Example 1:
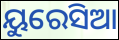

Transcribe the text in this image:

ୟୁରେସିଆ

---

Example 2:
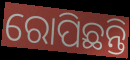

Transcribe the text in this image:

ରୋପିଛନ୍ତି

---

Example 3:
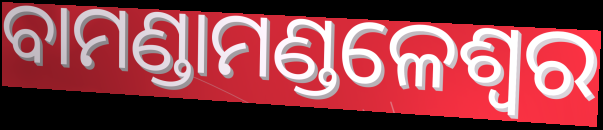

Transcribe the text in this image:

ବାମଣ୍ଡାମଣ୍ଡଳେଶ୍ୱର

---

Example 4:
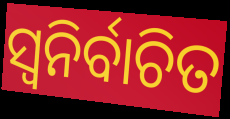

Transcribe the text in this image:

ସ୍ୱନିର୍ବାଚିତ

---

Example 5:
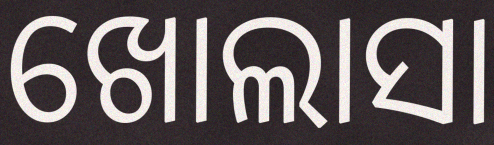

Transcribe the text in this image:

ଖୋଲାସା